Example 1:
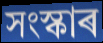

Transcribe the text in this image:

সংস্কাৰ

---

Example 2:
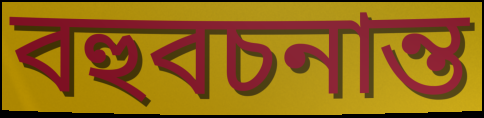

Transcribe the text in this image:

বহুবচনান্ত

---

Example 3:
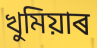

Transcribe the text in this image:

খুমিয়াৰ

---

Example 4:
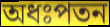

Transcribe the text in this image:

অধঃপতন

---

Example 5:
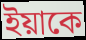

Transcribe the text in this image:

ইয়াকে